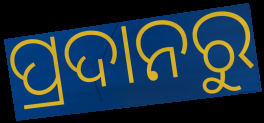
ପ୍ରଦାନରୁ